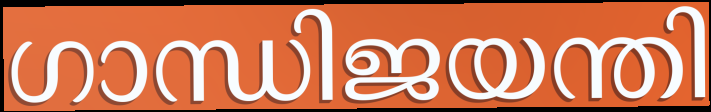
ഗാന്ധിജയന്തി